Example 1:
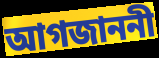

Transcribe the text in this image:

আগজাননী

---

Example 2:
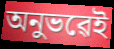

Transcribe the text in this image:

অনুভৱেই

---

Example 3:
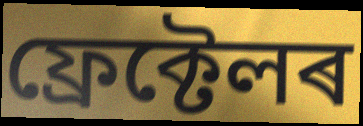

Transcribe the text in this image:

ফ্ৰেক্টেলৰ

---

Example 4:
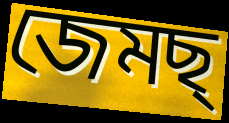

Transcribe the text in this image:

জেমছ্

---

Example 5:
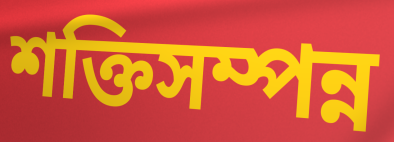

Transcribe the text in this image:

শক্তিসম্পন্ন